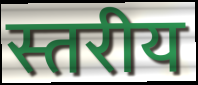
स्तरीय